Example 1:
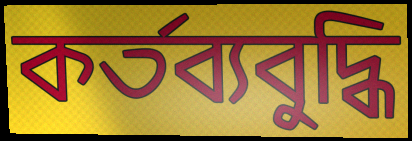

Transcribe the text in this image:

কর্তব্যবুদ্ধি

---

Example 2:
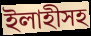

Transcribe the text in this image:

ইলাহীসহ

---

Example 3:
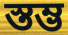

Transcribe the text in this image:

স্তম্ভ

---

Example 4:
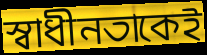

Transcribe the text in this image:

স্বাধীনতাকেই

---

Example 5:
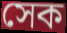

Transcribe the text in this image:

সেক